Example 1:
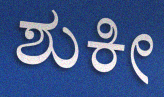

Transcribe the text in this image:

ಶುಕೀ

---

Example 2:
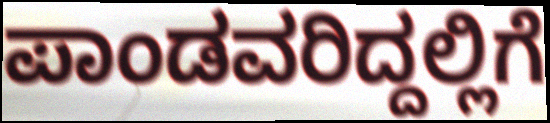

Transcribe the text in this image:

ಪಾಂಡವರಿದ್ದಲ್ಲಿಗೆ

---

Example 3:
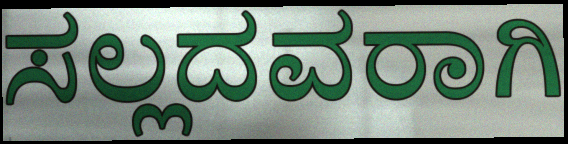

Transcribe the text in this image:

ಸಲ್ಲದವರಾಗಿ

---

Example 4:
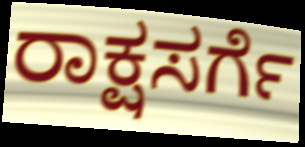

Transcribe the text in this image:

ರಾಕ್ಷಸರ್ಗೆ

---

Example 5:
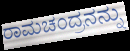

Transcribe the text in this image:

ರಾಮಚಂದ್ರನನ್ನು